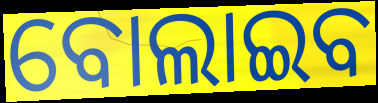
ବୋଲାଇବ